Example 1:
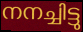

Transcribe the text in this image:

നനച്ചിട്ടു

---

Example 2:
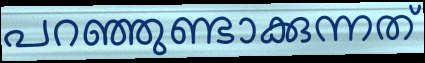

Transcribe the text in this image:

പറഞ്ഞുണ്ടാക്കുന്നത്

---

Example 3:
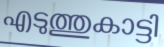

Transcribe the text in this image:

എടുത്തുകാട്ടി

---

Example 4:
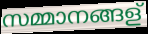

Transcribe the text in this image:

സമ്മാനങ്ങള്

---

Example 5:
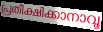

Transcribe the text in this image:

പ്രതീക്ഷിക്കാനാവൂ